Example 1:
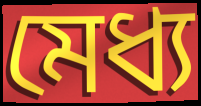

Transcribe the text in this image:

মেধ্য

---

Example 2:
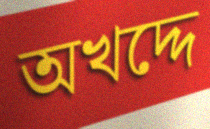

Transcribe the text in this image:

অখদ্দে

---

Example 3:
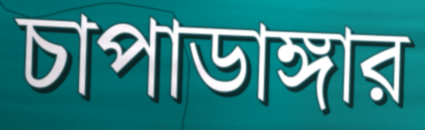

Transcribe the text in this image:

চাপাডাঙ্গার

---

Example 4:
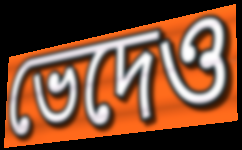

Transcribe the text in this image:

ভেদেও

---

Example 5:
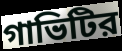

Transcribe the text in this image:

গাভিটির